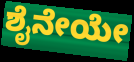
ಶೈನೇಯೇ